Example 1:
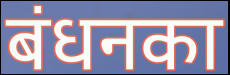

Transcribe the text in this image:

बंधनका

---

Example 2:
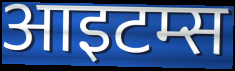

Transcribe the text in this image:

आइटम्‍स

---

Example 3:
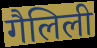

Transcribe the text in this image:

गैलिली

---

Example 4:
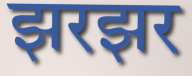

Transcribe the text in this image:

झरझर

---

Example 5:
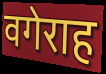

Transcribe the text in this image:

वगेराह